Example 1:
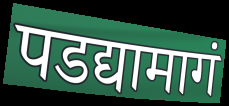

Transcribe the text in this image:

पडद्यामागं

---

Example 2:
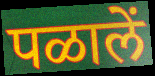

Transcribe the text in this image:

पळालें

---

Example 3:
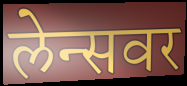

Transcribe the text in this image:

लेन्सवर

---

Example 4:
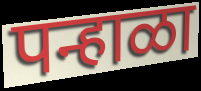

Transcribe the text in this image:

पन्हाळा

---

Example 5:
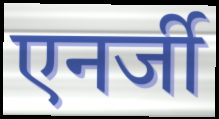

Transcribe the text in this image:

एनर्जी